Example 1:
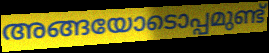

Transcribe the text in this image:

അങ്ങയോടൊപ്പമുണ്ട്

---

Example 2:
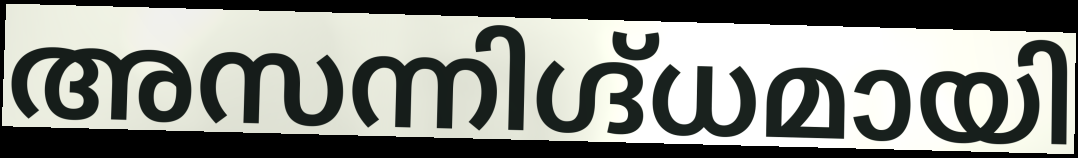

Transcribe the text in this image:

അസന്നിഗ്ദ്ധമായി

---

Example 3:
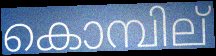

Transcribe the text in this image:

കൊമ്പില്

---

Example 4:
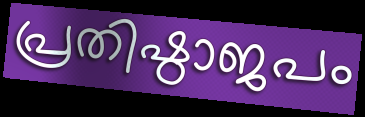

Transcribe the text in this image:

പ്രതിഷ്ഠാജപം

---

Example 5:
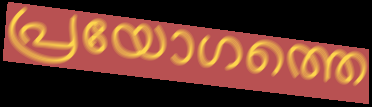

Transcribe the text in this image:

പ്രയോഗത്തെ